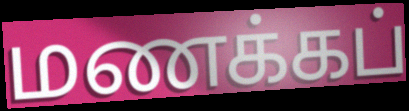
மணக்கப்